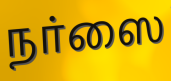
நர்ஸை